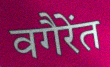
वगैरेंत